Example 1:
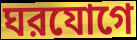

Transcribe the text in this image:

ঘরযোগে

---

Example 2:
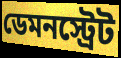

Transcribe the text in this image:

ডেমনস্ট্রেট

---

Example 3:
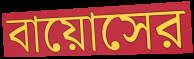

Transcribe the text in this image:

বায়োসের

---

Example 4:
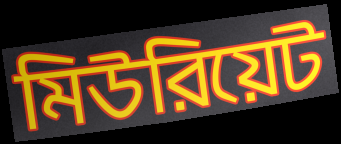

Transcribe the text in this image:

মিউরিয়েট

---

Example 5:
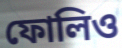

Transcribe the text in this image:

ফোলিও